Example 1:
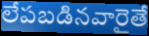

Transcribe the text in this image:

లేపబడినవారైతే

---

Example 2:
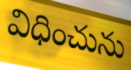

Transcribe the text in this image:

విధించును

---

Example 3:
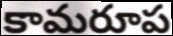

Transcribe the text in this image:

కామరూప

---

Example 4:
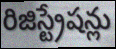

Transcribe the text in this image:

రిజిస్ట్రేషన్లు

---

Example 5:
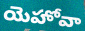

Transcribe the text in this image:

యెహోవా